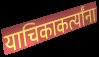
याचिकाकर्त्यांना